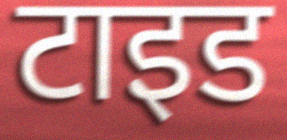
टाइड